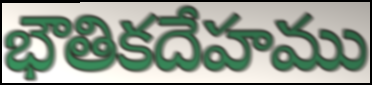
భౌతికదేహము